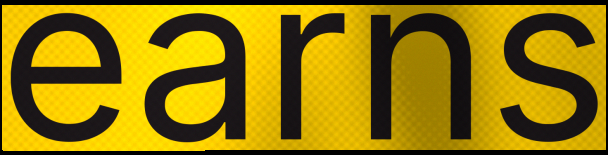
earns